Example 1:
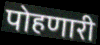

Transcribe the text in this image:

पोहणारी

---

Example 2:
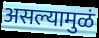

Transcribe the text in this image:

असल्यामुळं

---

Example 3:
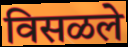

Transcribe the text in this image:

विसळले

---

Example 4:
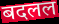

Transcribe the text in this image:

बदलल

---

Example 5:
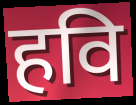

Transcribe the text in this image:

हवि